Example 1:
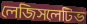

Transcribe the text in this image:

লেজিসলেটিভ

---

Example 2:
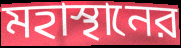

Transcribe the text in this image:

মহাস্থানের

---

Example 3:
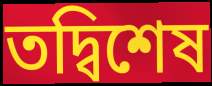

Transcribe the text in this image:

তদ্বিশেষ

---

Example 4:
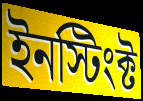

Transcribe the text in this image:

ইনস্টিংক্ট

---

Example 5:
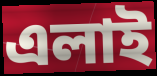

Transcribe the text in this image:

এলাই